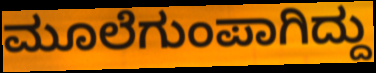
ಮೂಲೆಗುಂಪಾಗಿದ್ದು